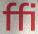
ffi